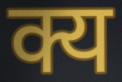
क्य